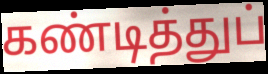
கண்டித்துப்